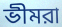
ভীমরা